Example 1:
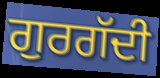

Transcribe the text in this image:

ਗੁਰਗੱਦੀ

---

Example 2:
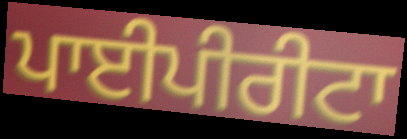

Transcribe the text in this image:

ਪਾਈਪੀਰੀਟਾ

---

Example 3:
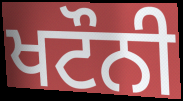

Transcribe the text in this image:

ਖਟੌਨੀ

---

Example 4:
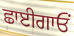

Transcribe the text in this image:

ਛਾਈਗਾਓਂ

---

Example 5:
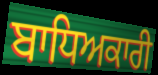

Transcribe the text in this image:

ਬਾਧਿਅਕਾਰੀ